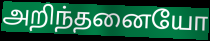
அறிந்தனையோ